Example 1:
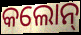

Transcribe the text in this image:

କଲୋନ୍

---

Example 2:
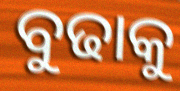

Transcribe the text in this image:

ବୁଢାକୁ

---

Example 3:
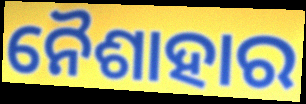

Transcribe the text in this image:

ନୈଶାହାର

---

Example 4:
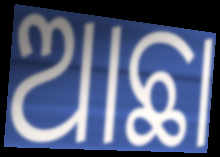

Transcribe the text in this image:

ଆଛା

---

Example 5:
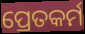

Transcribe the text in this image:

ପ୍ରେତକର୍ମ